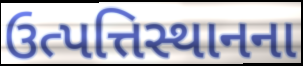
ઉત્પત્તિસ્થાનના